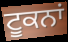
ਟੂਕਨਾਂ